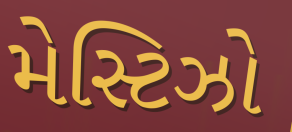
મેસ્ટિઝો